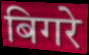
बिगरे